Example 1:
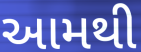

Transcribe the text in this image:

આમથી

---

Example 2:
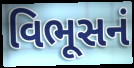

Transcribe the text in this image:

વિભૂસનં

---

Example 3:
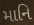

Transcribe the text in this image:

માનિ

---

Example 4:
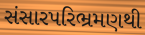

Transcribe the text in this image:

સંસારપરિભ્રમણથી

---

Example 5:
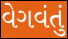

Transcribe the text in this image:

વેગવંતું